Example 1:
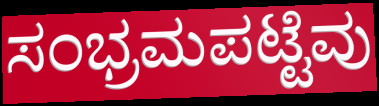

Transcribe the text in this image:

ಸಂಭ್ರಮಪಟ್ಟೆವು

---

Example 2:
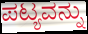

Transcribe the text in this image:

ಪಟ್ಯವನ್ನು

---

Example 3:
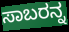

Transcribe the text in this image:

ಸಾಬರನ್ನ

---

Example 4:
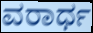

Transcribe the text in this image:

ವರಾರ್ಧ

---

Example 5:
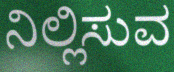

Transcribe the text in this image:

ನಿಲ್ಲಿಸುವ